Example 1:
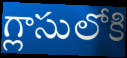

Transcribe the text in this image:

గ్లాసులోకి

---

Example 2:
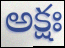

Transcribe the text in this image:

అక్షః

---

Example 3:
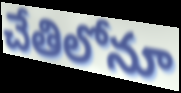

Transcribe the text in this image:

చేతిలోనూ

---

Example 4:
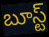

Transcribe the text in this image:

బూస్ట్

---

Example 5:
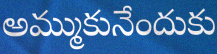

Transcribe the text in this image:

అమ్ముకునేందుకు